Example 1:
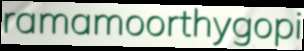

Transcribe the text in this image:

ramamoorthygopi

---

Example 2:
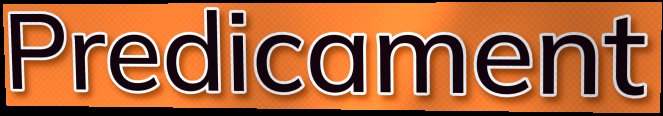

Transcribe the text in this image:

Predicament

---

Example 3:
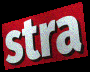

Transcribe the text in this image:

stra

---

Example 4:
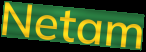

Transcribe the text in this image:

Netam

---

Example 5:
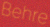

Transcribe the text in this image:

Behre